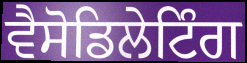
ਵੈਸੋਡਿਲੇਟਿੰਗ